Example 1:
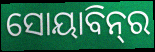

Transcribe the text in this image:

ସୋୟାବିନ୍‌ର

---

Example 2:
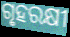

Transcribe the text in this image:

ଗୃହରକ୍ଷୀ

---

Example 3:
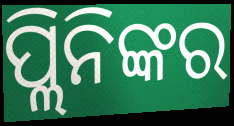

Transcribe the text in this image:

ପ୍ଲିନିଙ୍କର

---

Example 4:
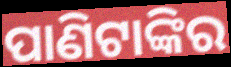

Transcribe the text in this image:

ପାଣିଟାଙ୍କିର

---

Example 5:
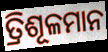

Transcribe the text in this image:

ତ୍ରିଶୂଳମାନ